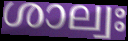
ശാല്വഃ